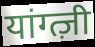
यांग्त्ज़ी